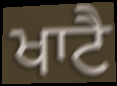
ਖਾਟੈ